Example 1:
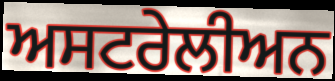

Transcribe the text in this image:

ਅਸਟਰੇਲੀਅਨ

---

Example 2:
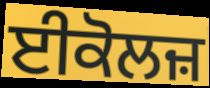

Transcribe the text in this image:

ਈਕੋਲਜ਼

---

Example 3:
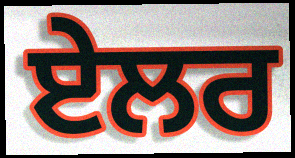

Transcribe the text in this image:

ਏਲਰ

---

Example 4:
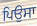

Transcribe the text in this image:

ਪਿਉਸਾ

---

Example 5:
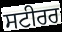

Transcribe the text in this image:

ਸਟੀਰਰ